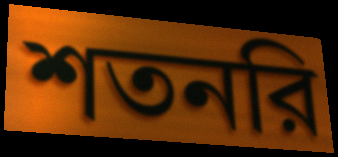
শতনরি